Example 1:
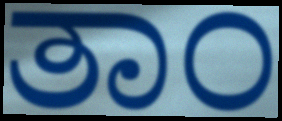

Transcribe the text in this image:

ತಾಂ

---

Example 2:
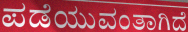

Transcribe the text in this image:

ಪಡೆಯುವಂತಾಗಿದೆ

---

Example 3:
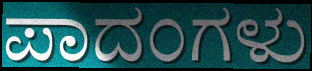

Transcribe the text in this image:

ಪಾದಂಗಳು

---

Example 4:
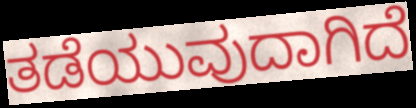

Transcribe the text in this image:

ತಡೆಯುವುದಾಗಿದೆ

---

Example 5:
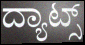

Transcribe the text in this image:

ದ್ಯಾಟ್ಸ್